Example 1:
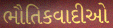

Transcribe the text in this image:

ભૌતિકવાદીઓ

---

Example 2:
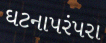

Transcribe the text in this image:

ઘટનાપરંપરા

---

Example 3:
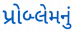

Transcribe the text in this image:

પ્રોબ્લેમનું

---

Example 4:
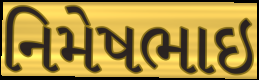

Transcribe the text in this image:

નિમેષભાઇ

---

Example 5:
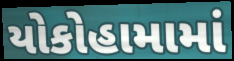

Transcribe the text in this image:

યોકોહામામાં